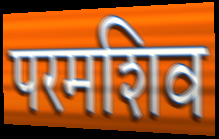
परमशिव